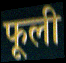
फूली